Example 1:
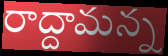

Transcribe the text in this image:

రాద్దామన్న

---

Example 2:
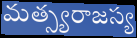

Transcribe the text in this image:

మత్స్యరాజస్య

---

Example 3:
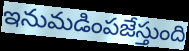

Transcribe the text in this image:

ఇనుమడింపజేస్తుంది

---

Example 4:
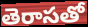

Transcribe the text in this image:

తెరాసతో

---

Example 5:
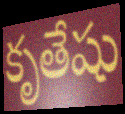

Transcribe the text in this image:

కృతేషు